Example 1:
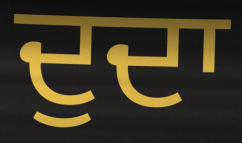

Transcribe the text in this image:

ਦੁਦਾ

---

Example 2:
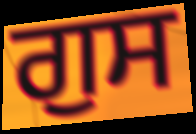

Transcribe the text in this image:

ਗੁਸ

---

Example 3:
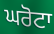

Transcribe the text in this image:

ਘਰੋਟਾ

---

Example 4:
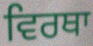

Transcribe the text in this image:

ਵਿਰਥਾ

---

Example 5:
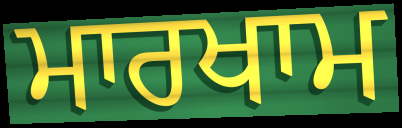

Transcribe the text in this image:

ਮਾਰਖਾਮ